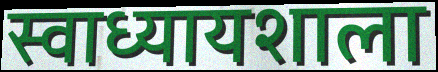
स्वाध्यायशाला